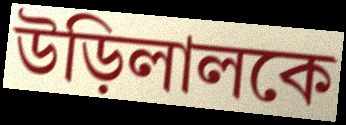
উড়িলালকে